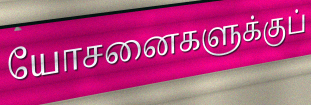
யோசனைகளுக்குப்